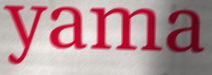
yama